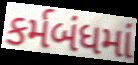
કર્મબંધમાં